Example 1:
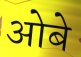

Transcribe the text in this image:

ओबे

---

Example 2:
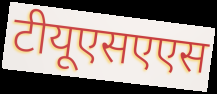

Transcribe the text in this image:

टीयूएसएएस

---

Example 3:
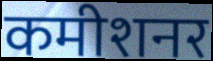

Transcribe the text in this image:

कमीशनर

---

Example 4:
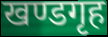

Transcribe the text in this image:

खण्डगृह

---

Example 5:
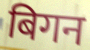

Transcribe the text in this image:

बिगन